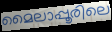
മൈലാപ്പൂരിലെ